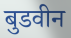
बुडवीन